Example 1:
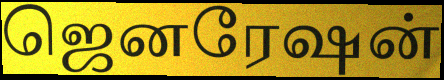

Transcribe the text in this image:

ஜெனரேஷன்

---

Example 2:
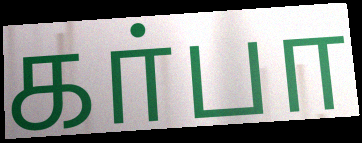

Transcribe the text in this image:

கர்பா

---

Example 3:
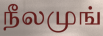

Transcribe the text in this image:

நீலமுங்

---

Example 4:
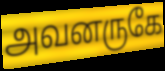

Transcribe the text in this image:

அவனருகே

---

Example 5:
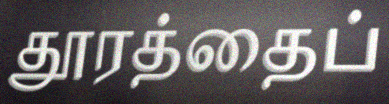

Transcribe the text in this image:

தூரத்தைப்